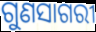
ଗୁଣସାଗରୀ